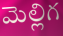
మెల్లిగ